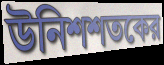
উনিশশতকের